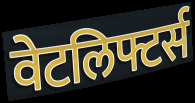
वेटलिफ्टर्स